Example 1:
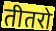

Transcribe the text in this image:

तीतरो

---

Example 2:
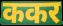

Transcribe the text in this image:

ककर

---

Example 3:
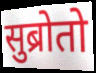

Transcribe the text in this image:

सुब्रोतो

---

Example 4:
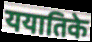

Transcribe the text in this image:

ययातिके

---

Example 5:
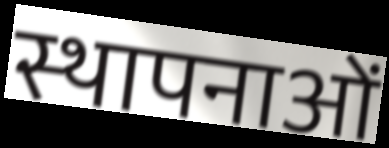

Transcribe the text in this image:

स्थापनाओं